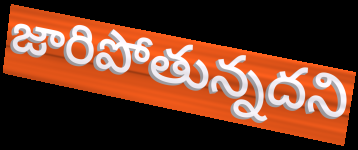
జారిపోతున్నదని